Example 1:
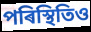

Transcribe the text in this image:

পৰিস্থিতিও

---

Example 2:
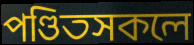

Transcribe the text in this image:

পণ্ডিতসকলে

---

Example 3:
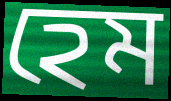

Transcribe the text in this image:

হেম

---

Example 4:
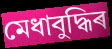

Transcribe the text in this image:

মেধাবুদ্ধিৰ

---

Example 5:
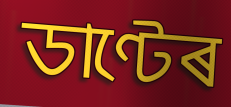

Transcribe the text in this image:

ডাণ্টেৰ